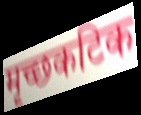
मृच्छकटिक